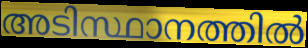
അടിസ്ഥാനത്തിൽ